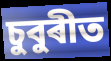
চুবুৰীত